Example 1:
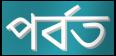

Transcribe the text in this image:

পৰ্বত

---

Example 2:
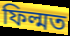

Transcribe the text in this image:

ফিল্মত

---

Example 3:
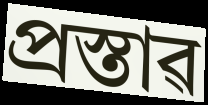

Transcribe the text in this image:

প্ৰস্তাৱ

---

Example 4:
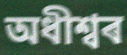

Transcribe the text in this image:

অধীশ্বৰ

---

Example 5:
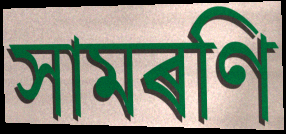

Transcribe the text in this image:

সামৰণি